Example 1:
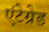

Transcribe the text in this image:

एंटेग्रेड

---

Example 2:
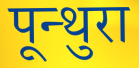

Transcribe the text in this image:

पून्थुरा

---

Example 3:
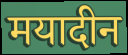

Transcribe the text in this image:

मयादीन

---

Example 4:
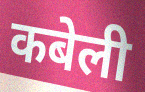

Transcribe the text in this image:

कबेली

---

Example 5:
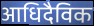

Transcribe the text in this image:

आधिदैविक